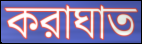
করাঘাত